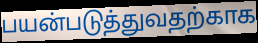
பயன்படுத்துவதற்காக